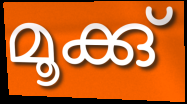
മൂക്കു്